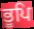
ਭੂਪਿ